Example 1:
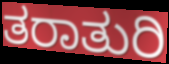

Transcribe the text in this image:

ತರಾತುರಿ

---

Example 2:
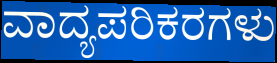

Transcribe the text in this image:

ವಾದ್ಯಪರಿಕರಗಳು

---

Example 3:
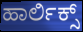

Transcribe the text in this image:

ಹಾರ್ಲಿಕ್ಸ್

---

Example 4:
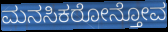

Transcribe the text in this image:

ಮನಸಿಕರೋನ್ತೋವ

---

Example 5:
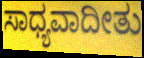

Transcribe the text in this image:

ಸಾಧ್ಯವಾದೀತು